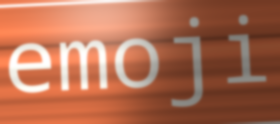
emoji